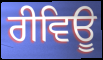
ਰੀਵਿਊ